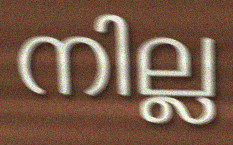
നില്ല